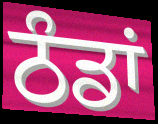
ਠੰਡਾਂ